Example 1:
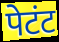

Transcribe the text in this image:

पेटंट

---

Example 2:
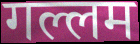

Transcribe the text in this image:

गल्लम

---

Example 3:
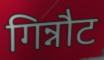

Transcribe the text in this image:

गिन्नौट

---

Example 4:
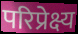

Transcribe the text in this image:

परिप्रेक्ष्य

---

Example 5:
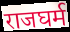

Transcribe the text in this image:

राजघर्म